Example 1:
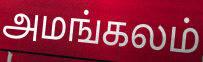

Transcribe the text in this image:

அமங்கலம்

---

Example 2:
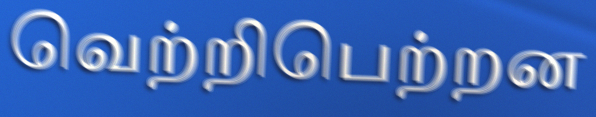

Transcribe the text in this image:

வெற்றிபெற்றன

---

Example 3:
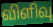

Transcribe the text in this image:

விளிவு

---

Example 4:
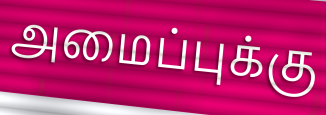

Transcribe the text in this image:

அமைப்புக்கு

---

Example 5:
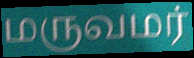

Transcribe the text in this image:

மருவமர்